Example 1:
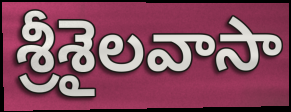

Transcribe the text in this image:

శ్రీశైలవాసా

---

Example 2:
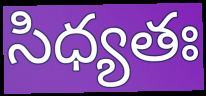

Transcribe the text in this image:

సిధ్యతః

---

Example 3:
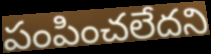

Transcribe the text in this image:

పంపించలేదని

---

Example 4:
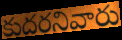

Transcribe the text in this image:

కుదరనివారు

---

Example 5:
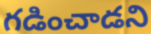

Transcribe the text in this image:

గడించాడని